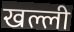
खल्ली